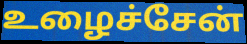
உழைச்சேன்